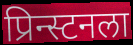
प्रिन्स्टनला